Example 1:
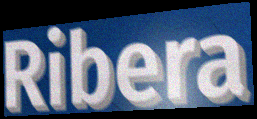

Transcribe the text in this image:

Ribera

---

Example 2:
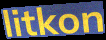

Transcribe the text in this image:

litkon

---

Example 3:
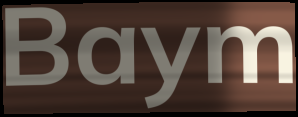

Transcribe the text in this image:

Baym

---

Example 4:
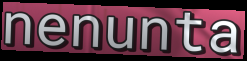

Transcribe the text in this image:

nenunta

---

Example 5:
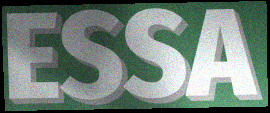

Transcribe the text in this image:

ESSA